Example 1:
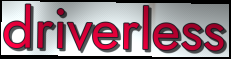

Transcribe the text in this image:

driverless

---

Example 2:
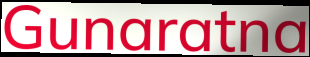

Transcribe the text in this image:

Gunaratna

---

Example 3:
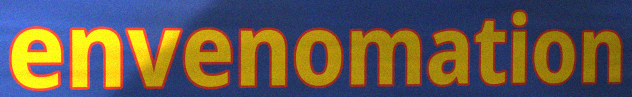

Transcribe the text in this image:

envenomation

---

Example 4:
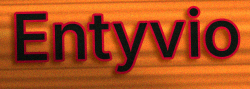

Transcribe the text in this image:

Entyvio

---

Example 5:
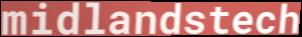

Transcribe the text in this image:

midlandstech